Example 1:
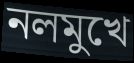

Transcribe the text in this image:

নলমুখে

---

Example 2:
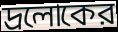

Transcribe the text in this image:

দ্রলোকের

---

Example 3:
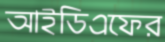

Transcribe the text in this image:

আইডিএফের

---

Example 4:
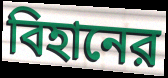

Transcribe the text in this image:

বিহানের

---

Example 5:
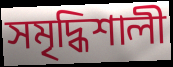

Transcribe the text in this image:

সমৃদ্ধিশালী